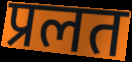
प्रलत